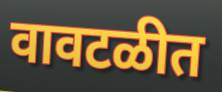
वावटळीत